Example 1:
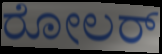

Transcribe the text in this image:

ರೋಲರ್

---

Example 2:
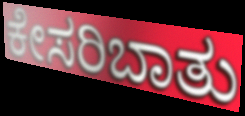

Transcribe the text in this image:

ಕೇಸರಿಬಾತು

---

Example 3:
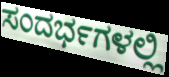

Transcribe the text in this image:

ಸಂದರ್ಭಗಳಲ್ಲಿ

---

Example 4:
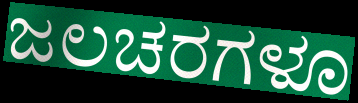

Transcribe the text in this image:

ಜಲಚರಗಳೂ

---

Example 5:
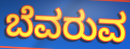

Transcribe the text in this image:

ಬೆವರುವ